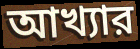
আখ্যার